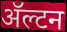
ॲल्टन